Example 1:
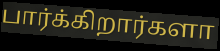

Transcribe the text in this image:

பார்க்கிறார்களா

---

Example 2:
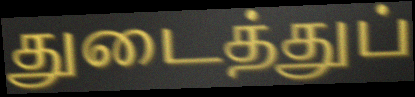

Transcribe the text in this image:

துடைத்துப்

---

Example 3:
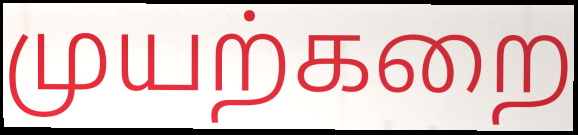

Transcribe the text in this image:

முயற்கறை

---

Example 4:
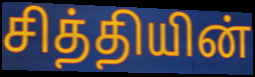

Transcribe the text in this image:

சித்தியின்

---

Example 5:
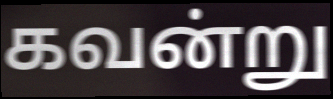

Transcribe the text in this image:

கவன்று